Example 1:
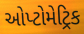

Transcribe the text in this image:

ઓપ્ટોમેટ્રિક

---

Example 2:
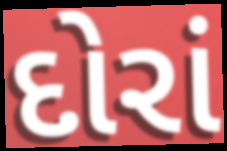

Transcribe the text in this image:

દોરાં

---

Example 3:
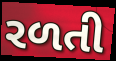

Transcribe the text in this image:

રળતી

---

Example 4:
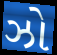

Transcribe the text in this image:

ઝો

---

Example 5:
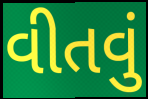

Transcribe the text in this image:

વીતવું